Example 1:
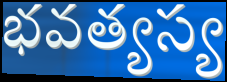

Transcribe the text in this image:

భవత్యస్య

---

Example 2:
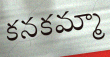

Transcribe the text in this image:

కనకమ్మా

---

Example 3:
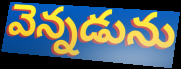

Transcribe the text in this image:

వెన్నడును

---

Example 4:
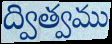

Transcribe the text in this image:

ద్విత్వము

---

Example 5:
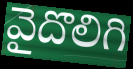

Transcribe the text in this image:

వైదొలిగి